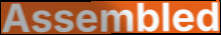
Assembled